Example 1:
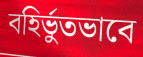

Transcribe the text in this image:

বহির্ভুতভাবে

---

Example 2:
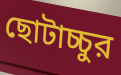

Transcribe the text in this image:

ছোটাচ্চুর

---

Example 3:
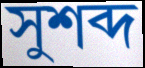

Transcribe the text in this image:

সুশব্দ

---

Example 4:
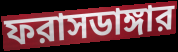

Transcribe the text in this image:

ফরাসডাঙ্গার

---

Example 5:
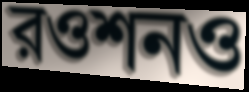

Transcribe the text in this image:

রওশনও